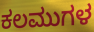
ಕಲಮುಗಳ